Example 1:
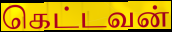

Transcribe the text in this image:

கெட்டவன்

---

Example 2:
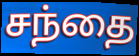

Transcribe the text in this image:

சந்தை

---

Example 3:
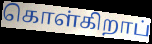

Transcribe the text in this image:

கொள்கிறாப்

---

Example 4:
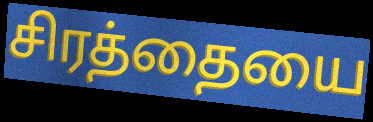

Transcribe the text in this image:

சிரத்தையை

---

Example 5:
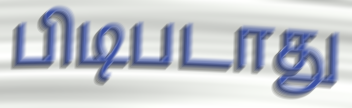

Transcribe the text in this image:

பிடிபடாது